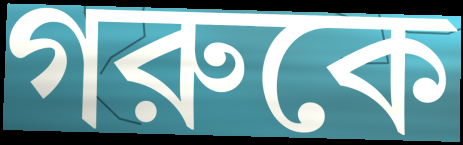
গরুকে